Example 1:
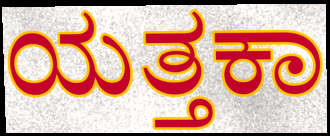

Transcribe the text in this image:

ಯತ್ತಕಾ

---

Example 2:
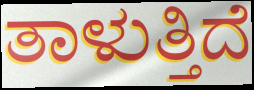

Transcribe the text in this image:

ತಾಳುತ್ತಿದೆ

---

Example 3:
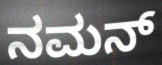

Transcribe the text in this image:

ನಮನ್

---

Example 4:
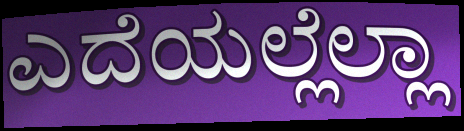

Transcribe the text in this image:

ಎದೆಯಲ್ಲೆಲ್ಲಾ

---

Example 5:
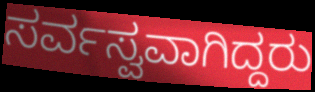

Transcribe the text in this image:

ಸರ್ವಸ್ವವಾಗಿದ್ದರು